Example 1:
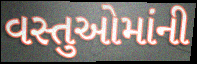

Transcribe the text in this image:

વસ્તુઓમાંની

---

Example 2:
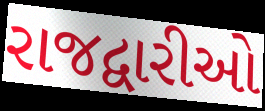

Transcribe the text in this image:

રાજદ્વારીઓ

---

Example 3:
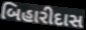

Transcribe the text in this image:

બિહારીદાસ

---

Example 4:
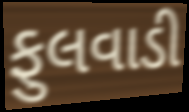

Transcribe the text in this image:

ફુલવાડી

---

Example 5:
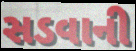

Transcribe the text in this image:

સડવાની